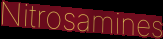
Nitrosamines